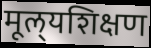
मूल्यशिक्षण